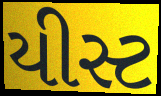
યીસ્ટ